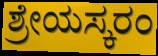
ಶ್ರೇಯಸ್ಕರಂ